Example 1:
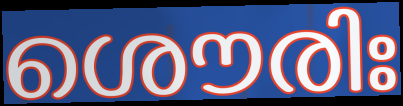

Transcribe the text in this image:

ശൌരിഃ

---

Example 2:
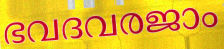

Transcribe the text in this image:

ഭവദവരജാം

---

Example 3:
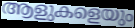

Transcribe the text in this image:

ആളുകളെയും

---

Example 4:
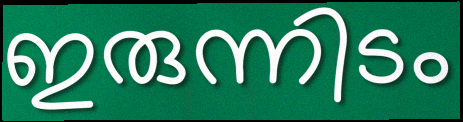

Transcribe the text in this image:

ഇരുന്നിടം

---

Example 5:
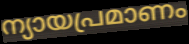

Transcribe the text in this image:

ന്യായപ്രമാണം